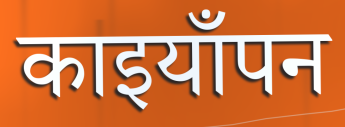
काइयाँपन